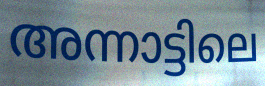
അന്നാട്ടിലെ